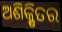
ଅଶିକ୍ଷିତର